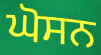
ਘੋਸਨ